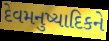
દેવમનુષ્યાદિકને